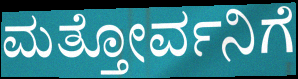
ಮತ್ತೋರ್ವನಿಗೆ